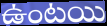
ఉంటయి